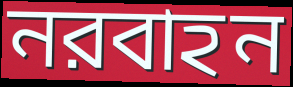
নরবাহন